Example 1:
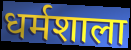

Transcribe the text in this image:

धर्मशाला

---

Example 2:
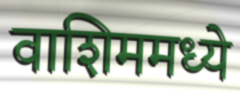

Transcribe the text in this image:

वाशिममध्ये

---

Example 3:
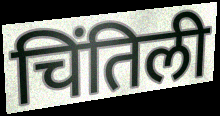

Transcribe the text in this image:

चिंतिली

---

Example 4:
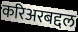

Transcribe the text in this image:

करिअरबद्दल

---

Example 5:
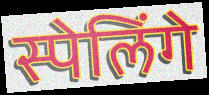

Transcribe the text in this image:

स्पेलिंगे